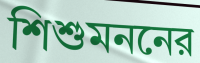
শিশুমননের